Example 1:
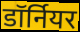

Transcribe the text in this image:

डॉर्नियर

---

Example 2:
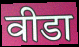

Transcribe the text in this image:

वीडा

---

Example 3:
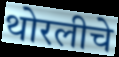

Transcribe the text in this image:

थोरलीचे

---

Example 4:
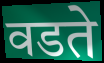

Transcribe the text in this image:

वडते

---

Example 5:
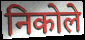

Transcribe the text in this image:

निकोले